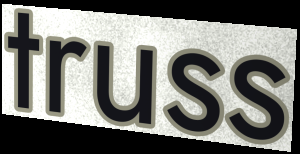
truss